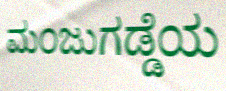
ಮಂಜುಗಡ್ಡೆಯ